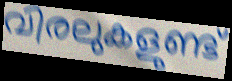
വിരലുകളുണ്ട്